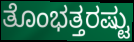
ತೊಂಭತ್ತರಷ್ಟು